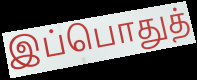
இப்பொதுத்